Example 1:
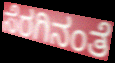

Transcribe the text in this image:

ಸೆರಗಿನಂತೆ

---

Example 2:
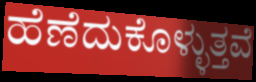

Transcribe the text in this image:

ಹೆಣೆದುಕೊಳ್ಳುತ್ತವೆ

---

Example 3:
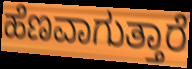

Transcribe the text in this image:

ಹೆಣವಾಗುತ್ತಾರೆ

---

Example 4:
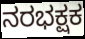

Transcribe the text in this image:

ನರಭಕ್ಷಕ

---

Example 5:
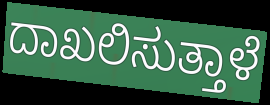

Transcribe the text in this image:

ದಾಖಲಿಸುತ್ತಾಳೆ